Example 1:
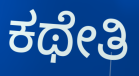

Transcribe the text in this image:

ಕಥೇತಿ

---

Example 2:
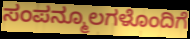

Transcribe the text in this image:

ಸಂಪನ್ಮೂಲಗಳೊಂದಿಗೆ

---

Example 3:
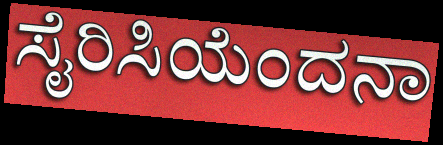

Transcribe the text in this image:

ಸೈರಿಸಿಯೆಂದನಾ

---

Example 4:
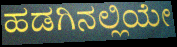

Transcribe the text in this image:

ಹಡಗಿನಲ್ಲಿಯೇ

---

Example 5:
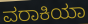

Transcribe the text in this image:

ವರಾಕಿಯಾ